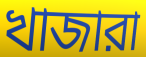
খাজারা